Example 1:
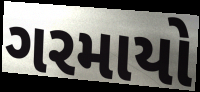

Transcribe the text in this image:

ગરમાયો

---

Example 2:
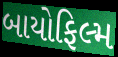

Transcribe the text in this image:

બાયોફિલ્મ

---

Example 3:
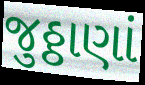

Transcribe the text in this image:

જુઠ્ઠાણાં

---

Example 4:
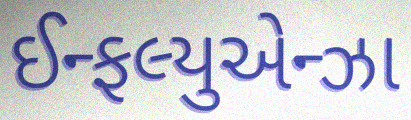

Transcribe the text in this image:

ઈન્ફલ્યુએન્ઝા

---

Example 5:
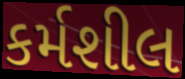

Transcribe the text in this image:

કર્મશીલ